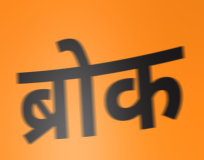
ब्रोक